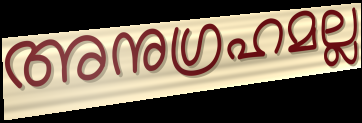
അനുഗ്രഹമല്ല